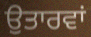
ਉਤਾਰਵਾਂ